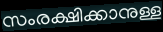
സംരക്ഷിക്കാനുള്ള